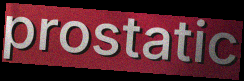
prostatic